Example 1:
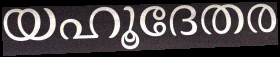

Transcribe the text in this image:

യഹൂദേതര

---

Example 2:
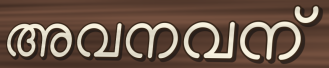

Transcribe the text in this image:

അവനവന്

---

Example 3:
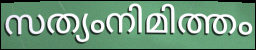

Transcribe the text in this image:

സത്യംനിമിത്തം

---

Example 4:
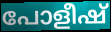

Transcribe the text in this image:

പോളീഷ്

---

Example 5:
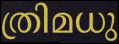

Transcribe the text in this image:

ത്രിമധു